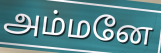
அம்மனே